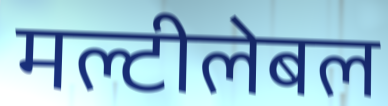
मल्टीलेबल